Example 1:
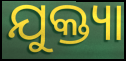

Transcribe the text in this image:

ଯୁକ୍ତ୍ୟା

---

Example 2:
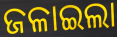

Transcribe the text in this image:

ଜଳାଇଲା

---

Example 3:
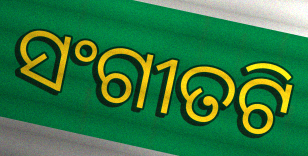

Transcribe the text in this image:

ସଂଗୀତଟି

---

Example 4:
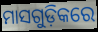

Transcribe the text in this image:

ମାସଗୁଡ଼ିକରେ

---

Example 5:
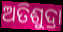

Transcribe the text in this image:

ଅତିଶୁଦ୍ରା